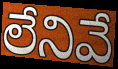
లేనివే